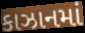
કાઝાનમાં